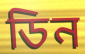
ডিন